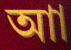
আা